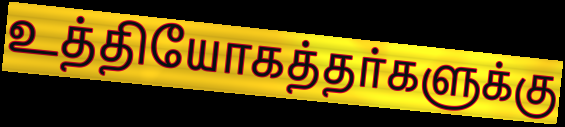
உத்தியோகத்தர்களுக்கு